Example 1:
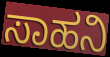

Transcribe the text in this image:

ಸಾಹನಿ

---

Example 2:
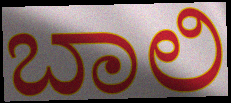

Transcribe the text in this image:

ಬಾಲಿ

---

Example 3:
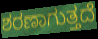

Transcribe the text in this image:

ಶರಣಾಗುತ್ತದೆ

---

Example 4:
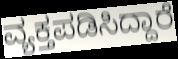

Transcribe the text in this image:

ವ್ಯಕ್ತಪಡಿಸಿದ್ದಾರೆ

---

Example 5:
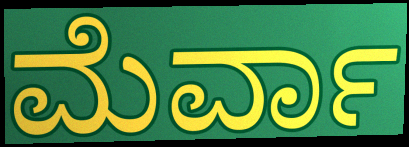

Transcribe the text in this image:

ಮೆರ್ವಾ